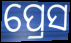
ପ୍ରେସ